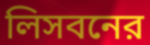
লিসবনের